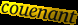
couenant